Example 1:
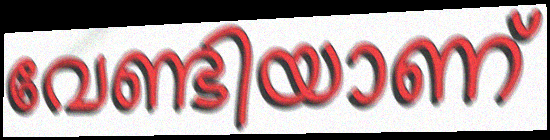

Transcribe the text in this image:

വേണ്ടിയാണ്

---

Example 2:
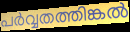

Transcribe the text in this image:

പർവ്വതത്തിങ്കൽ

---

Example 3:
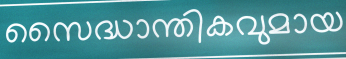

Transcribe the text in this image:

സൈദ്ധാന്തികവുമായ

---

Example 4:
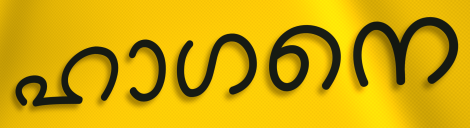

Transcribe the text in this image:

ഹാഗനെ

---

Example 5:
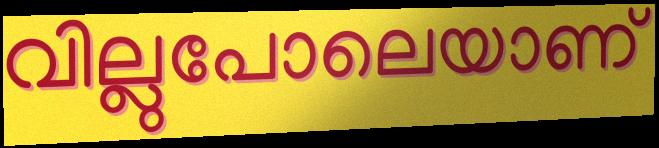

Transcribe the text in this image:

വില്ലുപോലെയാണ്